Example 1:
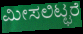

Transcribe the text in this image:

ಮೀಸಲಿಟ್ಟರೆ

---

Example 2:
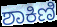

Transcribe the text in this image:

ಶಾಕಿಣಿ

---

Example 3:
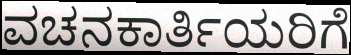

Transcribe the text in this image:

ವಚನಕಾರ್ತಿಯರಿಗೆ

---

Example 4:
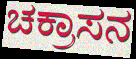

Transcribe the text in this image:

ಚಕ್ರಾಸನ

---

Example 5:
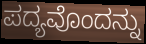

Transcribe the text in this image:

ಪದ್ಯವೊಂದನ್ನು